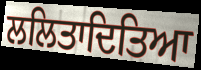
ਲਲਿਤਾਦਿਤਿਆ